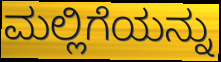
ಮಲ್ಲಿಗೆಯನ್ನು